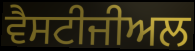
ਵੈਸਟੀਜੀਅਲ